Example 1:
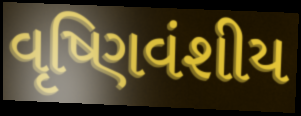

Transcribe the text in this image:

વૃષ્ણિવંશીય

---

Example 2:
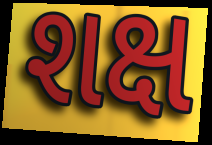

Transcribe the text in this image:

શક્ષ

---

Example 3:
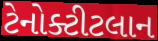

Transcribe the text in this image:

ટેનોક્ટીટલાન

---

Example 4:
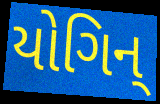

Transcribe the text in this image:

યોગિન્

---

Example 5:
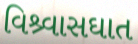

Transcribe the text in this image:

વિશ્ર્વાસઘાત